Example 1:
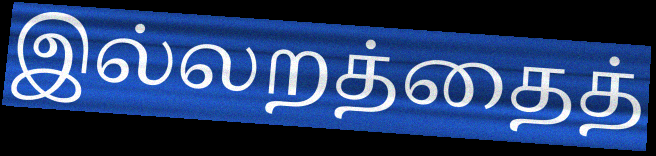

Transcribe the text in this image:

இல்லறத்தைத்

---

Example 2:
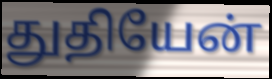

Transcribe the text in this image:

துதியேன்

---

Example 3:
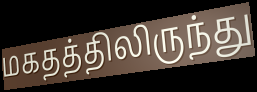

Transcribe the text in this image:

மகதத்திலிருந்து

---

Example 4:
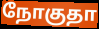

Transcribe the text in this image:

நோகுதா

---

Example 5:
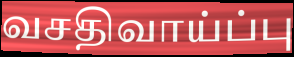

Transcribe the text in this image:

வசதிவாய்ப்பு